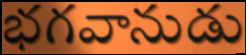
భగవానుడు